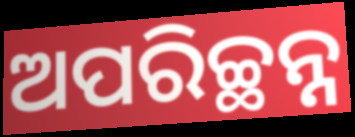
ଅପରିଚ୍ଛନ୍ନ